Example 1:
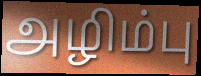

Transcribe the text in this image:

அழிம்பு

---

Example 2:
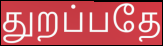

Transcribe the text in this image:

துறப்பதே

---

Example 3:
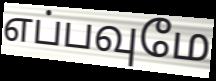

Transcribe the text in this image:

எப்பவுமே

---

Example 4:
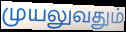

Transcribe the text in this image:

முயலுவதும்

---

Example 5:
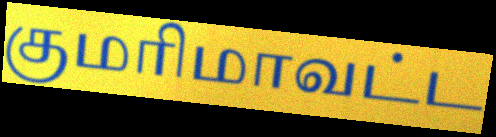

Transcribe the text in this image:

குமரிமாவட்ட